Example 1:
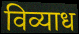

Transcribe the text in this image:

विव्याध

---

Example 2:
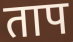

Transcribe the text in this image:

ताप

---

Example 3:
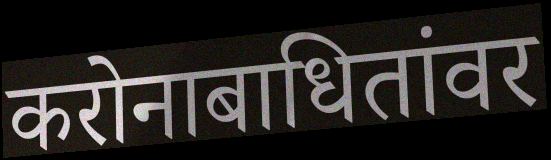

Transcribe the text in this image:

करोनाबाधितांवर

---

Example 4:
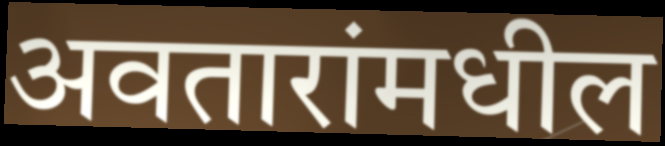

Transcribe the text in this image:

अवतारांमधील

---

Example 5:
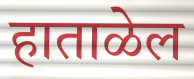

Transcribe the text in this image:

हाताळेल